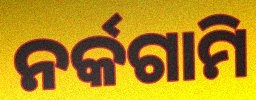
ନର୍କଗାମି